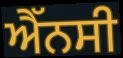
ਐੱਨਸੀ